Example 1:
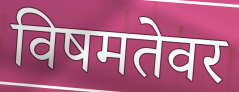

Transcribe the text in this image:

विषमतेवर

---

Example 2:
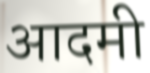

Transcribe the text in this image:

आदमी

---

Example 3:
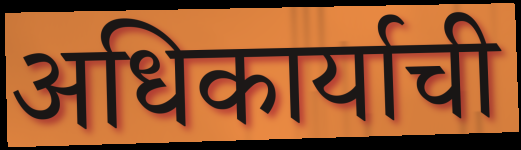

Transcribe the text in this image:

अधिकार्याची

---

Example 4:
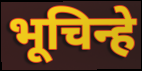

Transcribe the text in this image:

भूचिन्हे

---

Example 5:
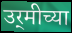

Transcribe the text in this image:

उर्मीच्या